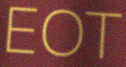
EOT